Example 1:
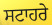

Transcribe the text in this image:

ਸਟਾਹਰੇ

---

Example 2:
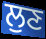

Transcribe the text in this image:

ਲੁਣ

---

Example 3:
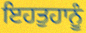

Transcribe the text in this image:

ਇਹਤੁਹਾਨੂੰ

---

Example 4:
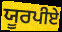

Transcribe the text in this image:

ਯੂਰਪੀਏ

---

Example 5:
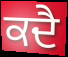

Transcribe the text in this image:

ਕਦੈ